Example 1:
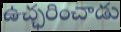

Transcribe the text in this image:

ఉచ్ఛరించాడు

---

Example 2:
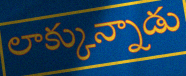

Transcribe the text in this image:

లాక్కున్నాడు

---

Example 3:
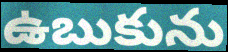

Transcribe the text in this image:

ఉబుకును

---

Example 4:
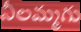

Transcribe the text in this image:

నీలమ్మగు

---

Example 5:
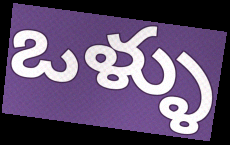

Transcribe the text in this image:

ఒళ్ళు